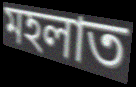
মহলাত